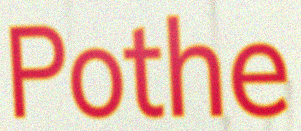
Pothe